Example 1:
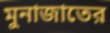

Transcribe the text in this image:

মুনাজাতের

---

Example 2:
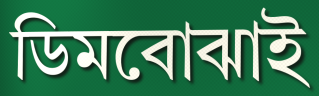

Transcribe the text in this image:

ডিমবোঝাই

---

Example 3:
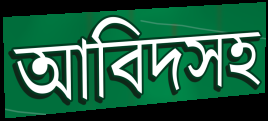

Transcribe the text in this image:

আবিদসহ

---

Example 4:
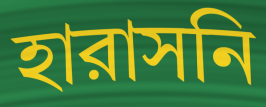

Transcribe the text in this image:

হারাসনি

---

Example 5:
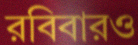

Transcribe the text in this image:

রবিবারও